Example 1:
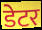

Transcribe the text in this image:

डेटर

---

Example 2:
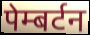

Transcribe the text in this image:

पेम्बर्टन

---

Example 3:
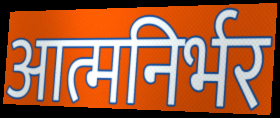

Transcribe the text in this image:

आत्मनिर्भर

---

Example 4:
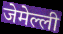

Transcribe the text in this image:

जेमेल्ली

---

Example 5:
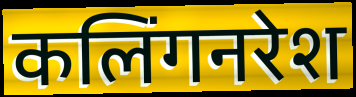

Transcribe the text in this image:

कलिंगनरेश